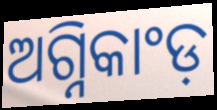
ଅଗ୍ନିକାଂଡ଼